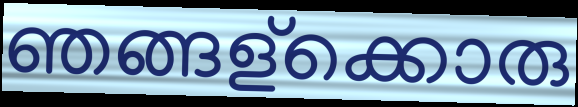
ഞങ്ങള്ക്കൊരു